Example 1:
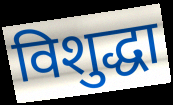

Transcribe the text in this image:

विशुद्धा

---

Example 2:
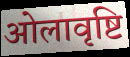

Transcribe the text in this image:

ओलावृष्टि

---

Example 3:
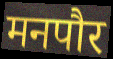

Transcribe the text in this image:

मनपौर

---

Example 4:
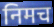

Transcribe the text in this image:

निमच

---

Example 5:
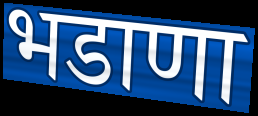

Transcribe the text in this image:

भडाणा